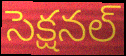
సెక్షనల్